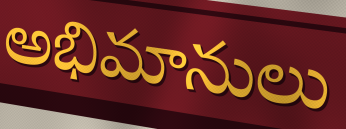
అభిమానులు